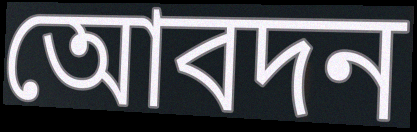
আেবদন